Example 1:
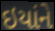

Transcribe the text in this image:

ઇયાંને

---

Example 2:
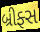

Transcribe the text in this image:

બ્રીફ્સ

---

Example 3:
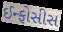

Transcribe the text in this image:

ઈન્ફોસીસ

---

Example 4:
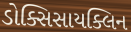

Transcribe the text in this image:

ડોક્સિસાયક્લિન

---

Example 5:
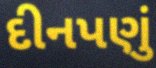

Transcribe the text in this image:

દીનપણું